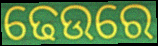
ଢେଉରେ